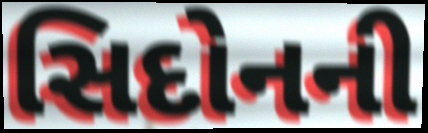
સિદોનની